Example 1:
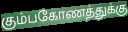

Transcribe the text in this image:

கும்பகோணத்துக்கு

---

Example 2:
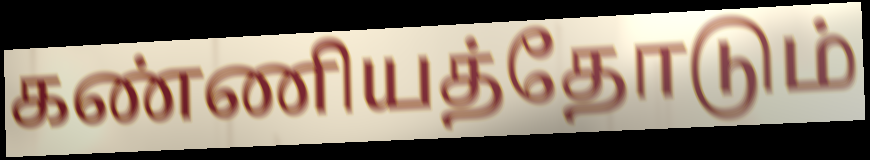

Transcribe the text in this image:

கண்ணியத்தோடும்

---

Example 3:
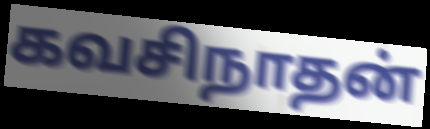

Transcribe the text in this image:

கவசிநாதன்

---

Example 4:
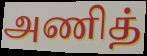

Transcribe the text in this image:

அணித்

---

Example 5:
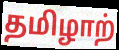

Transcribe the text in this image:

தமிழாற்